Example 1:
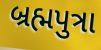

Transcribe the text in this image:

બ્રહ્મપુત્રા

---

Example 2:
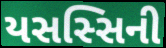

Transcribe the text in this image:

યસસ્સિની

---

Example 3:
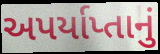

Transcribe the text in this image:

અપર્યાપ્તાનું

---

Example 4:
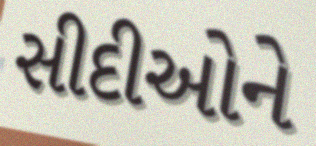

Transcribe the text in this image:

સીદીઓને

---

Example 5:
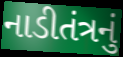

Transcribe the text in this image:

નાડીતંત્રનું